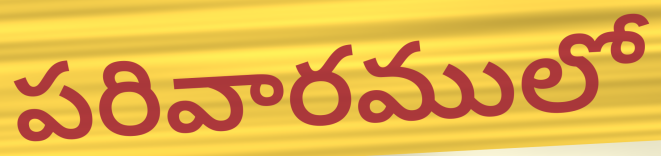
పరివారములో